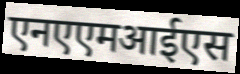
एनएएमआईएस